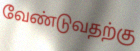
வேண்டுவதற்கு